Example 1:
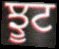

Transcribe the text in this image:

ਝੂਟ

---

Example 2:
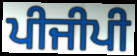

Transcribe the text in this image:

ਪੀਜੀਪੀ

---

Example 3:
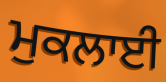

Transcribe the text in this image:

ਮੁਕਲਾਈ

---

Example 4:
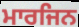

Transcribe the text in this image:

ਮਾਰਜਿਨ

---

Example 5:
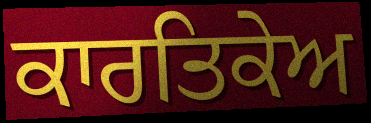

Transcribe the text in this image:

ਕਾਰਤਿਕੇਅ